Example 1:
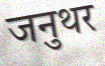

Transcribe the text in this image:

जनुथर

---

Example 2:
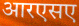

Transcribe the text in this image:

आरएसए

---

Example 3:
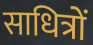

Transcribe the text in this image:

साधित्रों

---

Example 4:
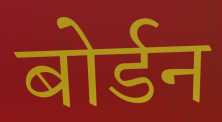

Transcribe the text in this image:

बोर्डन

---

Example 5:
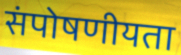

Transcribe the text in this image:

संपोषणीयता